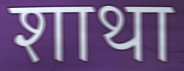
शाथा